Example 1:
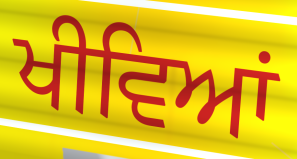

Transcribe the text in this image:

ਖੀਵਿਆਂ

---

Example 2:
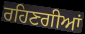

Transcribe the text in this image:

ਰਹਿਣਗੀਆਂ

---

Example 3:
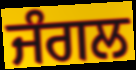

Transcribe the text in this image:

ਜੰਗਲ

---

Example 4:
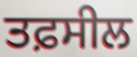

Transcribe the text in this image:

ਤਫ਼ਸੀਲ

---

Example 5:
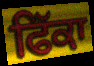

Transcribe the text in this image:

ਫਿੱਕਾ